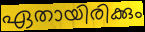
ഏതായിരിക്കും